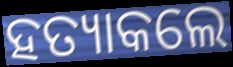
ହତ୍ୟାକଲେ